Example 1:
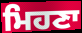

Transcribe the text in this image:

ਮਿਹਣਾ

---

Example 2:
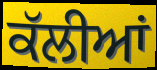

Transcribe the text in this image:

ਕੱਲੀਆਂ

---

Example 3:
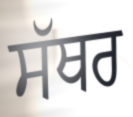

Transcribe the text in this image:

ਸੱਥਰ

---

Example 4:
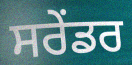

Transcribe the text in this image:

ਸਰੇਂਡਰ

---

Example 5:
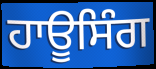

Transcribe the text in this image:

ਹਾਊਸਿੰਗ